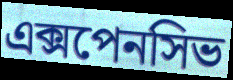
এক্সপেনসিভ